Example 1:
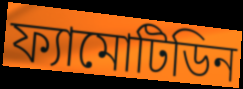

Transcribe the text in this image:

ফ্যামোটিডিন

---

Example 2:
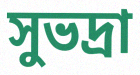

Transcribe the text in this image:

সুভদ্রা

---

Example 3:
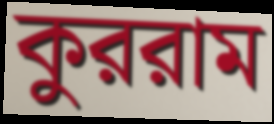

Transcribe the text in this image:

কুররাম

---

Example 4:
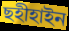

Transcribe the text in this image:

ছহীহাইন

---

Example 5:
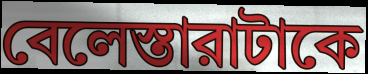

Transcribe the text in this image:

বেলেস্তারাটাকে